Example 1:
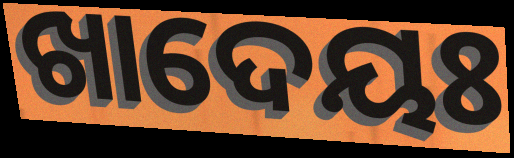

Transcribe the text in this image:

ଖାଦେୟଃ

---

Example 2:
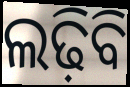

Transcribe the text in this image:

ଲଢ଼ିବି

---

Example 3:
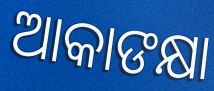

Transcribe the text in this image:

ଆକାଙକ୍ଷା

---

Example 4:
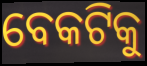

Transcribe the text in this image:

ବେକଟିକୁ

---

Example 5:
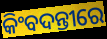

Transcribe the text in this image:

କିଂବଦନ୍ତୀରେ